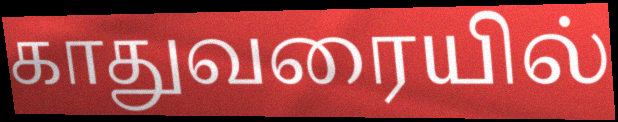
காதுவரையில்